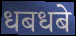
धबधबे